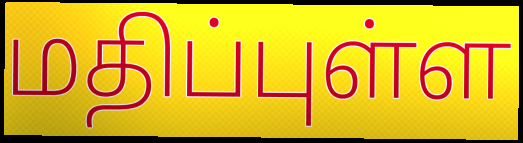
மதிப்புள்ள